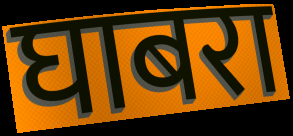
घाबरा